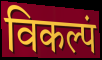
विकल्पं